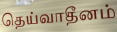
தெய்வாதீனம்